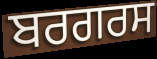
ਬਰਗਰਸ